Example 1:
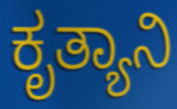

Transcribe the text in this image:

ಕೃತ್ಯಾನಿ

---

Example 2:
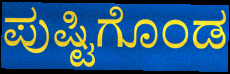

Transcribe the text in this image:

ಪುಷ್ಟಿಗೊಂಡ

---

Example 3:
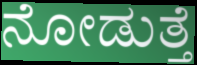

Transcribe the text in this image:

ನೋಡುತ್ತೆ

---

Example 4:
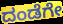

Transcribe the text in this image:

ದಂಡೆಗೇ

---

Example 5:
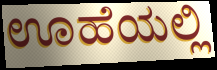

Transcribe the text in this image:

ಊಹೆಯಲ್ಲಿ